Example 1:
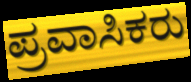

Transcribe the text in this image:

ಪ್ರವಾಸಿಕರು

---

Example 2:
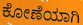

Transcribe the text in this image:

ಕೋಣೆಯಾಗಿ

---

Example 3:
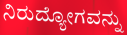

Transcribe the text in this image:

ನಿರುದ್ಯೋಗವನ್ನು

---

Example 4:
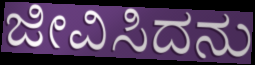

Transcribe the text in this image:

ಜೀವಿಸಿದನು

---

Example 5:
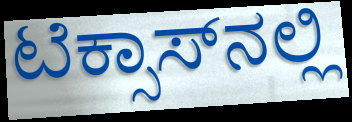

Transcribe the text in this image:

ಟೆಕ್ಸಾಸ್‌ನಲ್ಲಿ